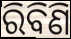
ରିବିଣି